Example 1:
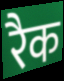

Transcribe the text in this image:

रैक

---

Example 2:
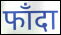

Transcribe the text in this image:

फाँदा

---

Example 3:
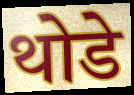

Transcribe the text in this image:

थोडे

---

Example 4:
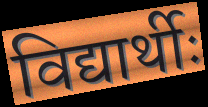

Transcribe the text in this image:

विद्यार्थीः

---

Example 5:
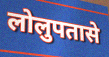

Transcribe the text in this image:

लोलुपतासे